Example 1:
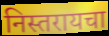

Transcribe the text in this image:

निस्तरायचा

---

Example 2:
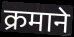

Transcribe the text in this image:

क्रमाने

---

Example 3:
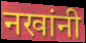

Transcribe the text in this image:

नखांनी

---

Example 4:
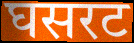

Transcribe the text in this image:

घसरट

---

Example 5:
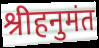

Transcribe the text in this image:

श्रीहनुमंत